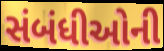
સંબંધીઓની